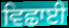
ਵਿਛਾਈ